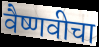
वैष्णवीचा